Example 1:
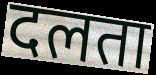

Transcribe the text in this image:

दलता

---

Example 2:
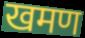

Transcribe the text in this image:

खमण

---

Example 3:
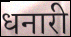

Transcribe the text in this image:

धनारी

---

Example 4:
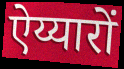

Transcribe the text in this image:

ऐय्यारों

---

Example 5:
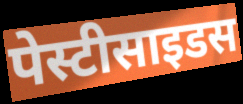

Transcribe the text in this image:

पेस्टीसाइडस